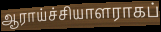
ஆராய்ச்சியாளராகப்